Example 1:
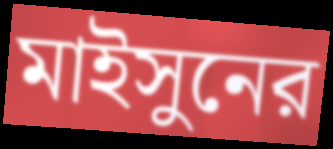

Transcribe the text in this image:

মাইসুনের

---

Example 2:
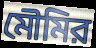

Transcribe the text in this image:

মৌমির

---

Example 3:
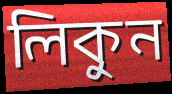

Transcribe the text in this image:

লিকুন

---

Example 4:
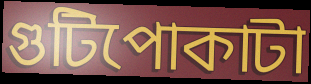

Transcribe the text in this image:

গুটিপোকাটা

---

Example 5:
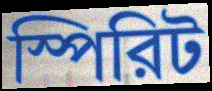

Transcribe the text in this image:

স্পিরিট